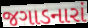
જગાડનારાં